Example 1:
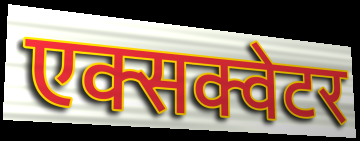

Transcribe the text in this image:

एक्सक्वेटर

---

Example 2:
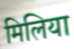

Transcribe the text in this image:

मिलिया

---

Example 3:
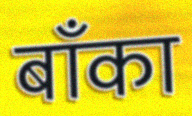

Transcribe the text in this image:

बाँका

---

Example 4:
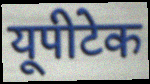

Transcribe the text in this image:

यूपीटेक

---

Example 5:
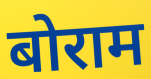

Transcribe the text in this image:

बोराम